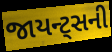
જાયન્ટ્સની